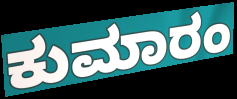
ಕುಮಾರಂ